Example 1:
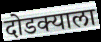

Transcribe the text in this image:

दोडक्याला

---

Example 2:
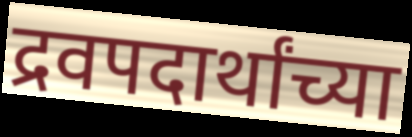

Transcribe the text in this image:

द्रवपदार्थांच्या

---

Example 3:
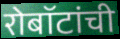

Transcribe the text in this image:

रोबॉटांची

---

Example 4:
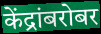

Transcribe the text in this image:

केंद्रांबरोबर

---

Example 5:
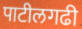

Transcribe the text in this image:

पाटीलगढी